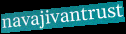
navajivantrust